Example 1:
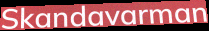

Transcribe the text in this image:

Skandavarman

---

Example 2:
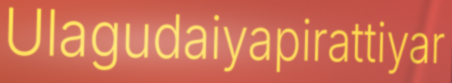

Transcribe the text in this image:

Ulagudaiyapirattiyar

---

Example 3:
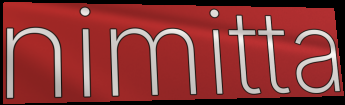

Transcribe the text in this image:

nimitta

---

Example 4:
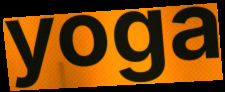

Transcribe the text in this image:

yoga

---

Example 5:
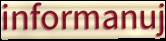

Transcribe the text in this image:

informanuj